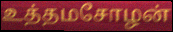
உத்தமசோழன்